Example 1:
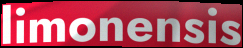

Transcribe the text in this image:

limonensis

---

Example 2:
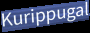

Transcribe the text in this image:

Kurippugal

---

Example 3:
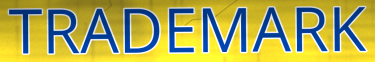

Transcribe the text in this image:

TRADEMARK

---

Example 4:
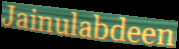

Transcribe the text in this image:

Jainulabdeen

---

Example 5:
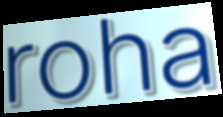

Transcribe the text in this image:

roha